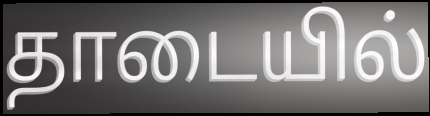
தாடையில்